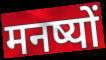
मनष्यों